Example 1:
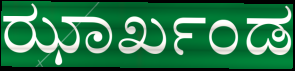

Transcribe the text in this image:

ಝಾರ್ಖಂಡ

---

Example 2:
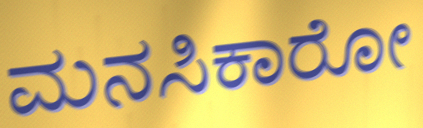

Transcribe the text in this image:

ಮನಸಿಕಾರೋ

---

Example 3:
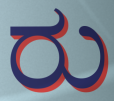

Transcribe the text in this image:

ರು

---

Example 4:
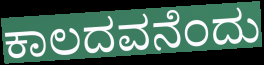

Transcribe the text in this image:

ಕಾಲದವನೆಂದು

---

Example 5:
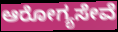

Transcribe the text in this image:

ಆರೋಗ್ಯಸೇವೆ